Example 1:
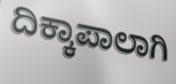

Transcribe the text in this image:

ದಿಕ್ಕಾಪಾಲಾಗಿ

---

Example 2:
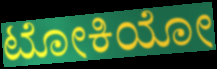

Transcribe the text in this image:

ಟೋಕಿಯೋ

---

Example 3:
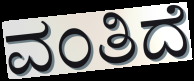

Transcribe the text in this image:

ವಂತಿದೆ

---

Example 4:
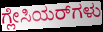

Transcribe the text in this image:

ಗ್ಲೇಸಿಯರ್‌ಗಳು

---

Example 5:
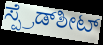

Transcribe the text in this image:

ಸ್ಪ್ರೆಡ್‌ಶೀಟ್